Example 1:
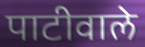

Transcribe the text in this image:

पाटीवाले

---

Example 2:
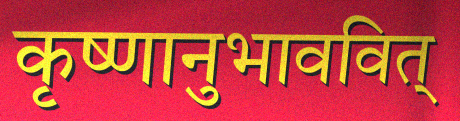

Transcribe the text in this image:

कृष्णानुभाववित्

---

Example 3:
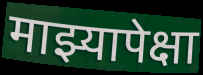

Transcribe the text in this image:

माझ्यापेक्षा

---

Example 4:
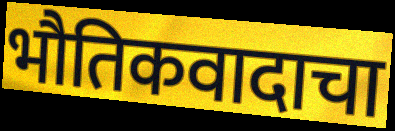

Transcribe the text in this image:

भौतिकवादाचा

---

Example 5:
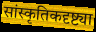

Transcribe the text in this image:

सांस्कृतिकदृष्ट्या